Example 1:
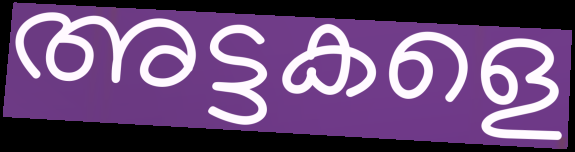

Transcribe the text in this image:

അട്ടകളെ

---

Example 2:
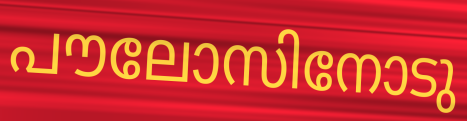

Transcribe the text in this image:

പൗലോസിനോടു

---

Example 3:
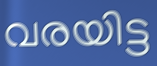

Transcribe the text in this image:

വരയിട്ട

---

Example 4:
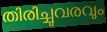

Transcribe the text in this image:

തിരിച്ചുവരവും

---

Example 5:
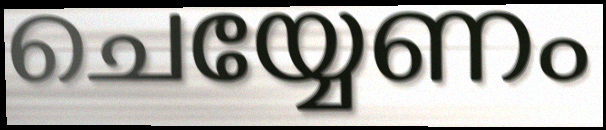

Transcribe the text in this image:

ചെയ്യേണം